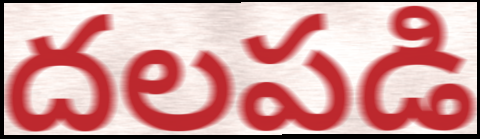
దలపడి